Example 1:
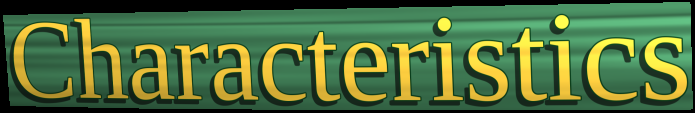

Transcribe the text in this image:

Characteristics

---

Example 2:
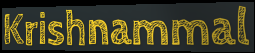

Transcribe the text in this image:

Krishnammal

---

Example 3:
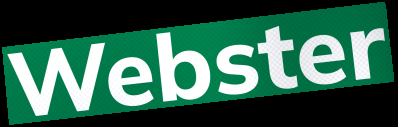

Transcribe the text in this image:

Webster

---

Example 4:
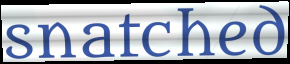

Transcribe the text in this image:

snatched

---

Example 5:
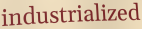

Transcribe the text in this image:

industrialized